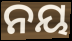
ନୟ